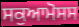
ਸਕੁਆਮੋਸਸ